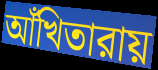
আঁখিতারায়